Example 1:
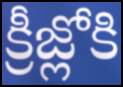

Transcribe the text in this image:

క్రీజ్లోకి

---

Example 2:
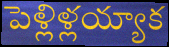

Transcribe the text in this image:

పెళ్లిళ్లయ్యాక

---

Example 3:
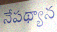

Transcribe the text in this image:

నేపథ్యాన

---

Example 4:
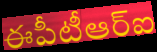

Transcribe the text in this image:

ఈపీటీఆర్ఐ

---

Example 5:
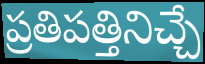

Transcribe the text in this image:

ప్రతిపత్తినిచ్చే